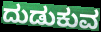
ದುಡುಕುವ